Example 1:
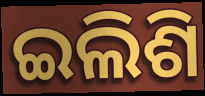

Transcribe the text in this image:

ଇଲିଶି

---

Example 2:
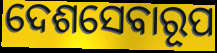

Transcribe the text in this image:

ଦେଶସେବାରୂପ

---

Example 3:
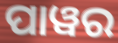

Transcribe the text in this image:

ପାୱର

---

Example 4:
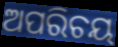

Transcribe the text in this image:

ଅପରିଚୟ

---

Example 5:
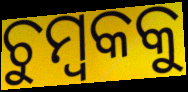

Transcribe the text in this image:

ଚୁମ୍ୱକକୁ